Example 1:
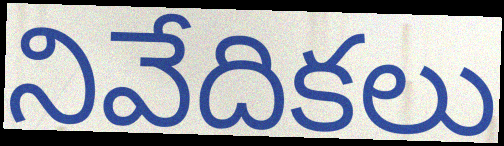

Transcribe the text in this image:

నివేదికలు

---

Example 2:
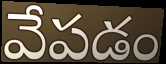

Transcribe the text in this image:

వేపడం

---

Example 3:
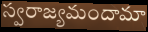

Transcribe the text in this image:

స్వరాజ్యమందామా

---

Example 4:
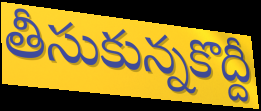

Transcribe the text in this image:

తీసుకున్నకొద్దీ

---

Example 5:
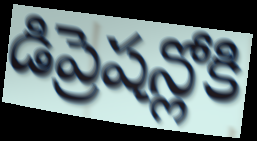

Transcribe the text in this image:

డిప్రెషన్లోకి